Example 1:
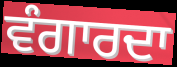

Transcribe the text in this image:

ਵੰਗਾਰਦਾ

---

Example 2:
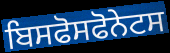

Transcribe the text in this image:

ਬਿਸਫੋਸਫੋਨੇਟਸ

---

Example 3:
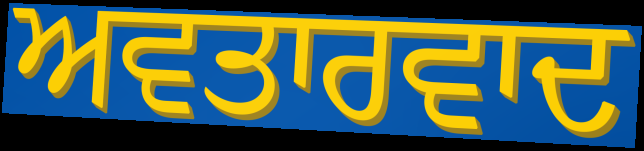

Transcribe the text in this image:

ਅਵਤਾਰਵਾਦ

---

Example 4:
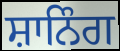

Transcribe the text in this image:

ਸ਼ਾਨਿੰਗ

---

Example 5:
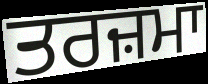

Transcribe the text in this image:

ਤਰਜ਼ਮਾ